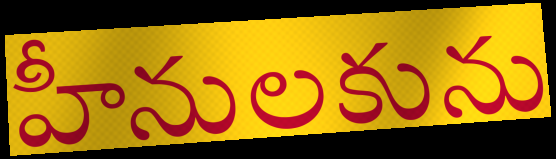
హీనులకును